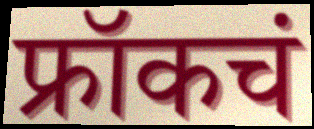
फ्रॉकचं